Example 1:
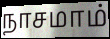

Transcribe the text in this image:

நாசமாம்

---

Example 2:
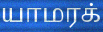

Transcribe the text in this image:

யாமரக்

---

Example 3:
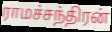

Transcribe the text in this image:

ராமச்சந்திரன்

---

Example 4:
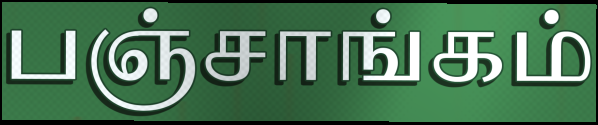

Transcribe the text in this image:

பஞ்சாங்கம்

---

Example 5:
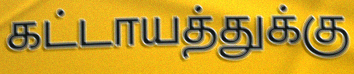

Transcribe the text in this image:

கட்டாயத்துக்கு